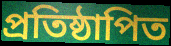
প্ৰতিষ্ঠাপিত